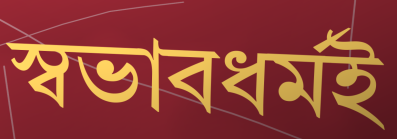
স্বভাবধর্মই